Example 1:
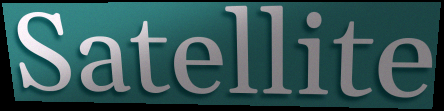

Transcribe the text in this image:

Satellite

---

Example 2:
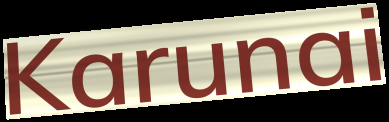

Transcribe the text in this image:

Karunai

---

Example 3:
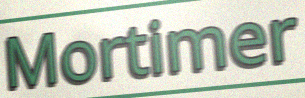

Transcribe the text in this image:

Mortimer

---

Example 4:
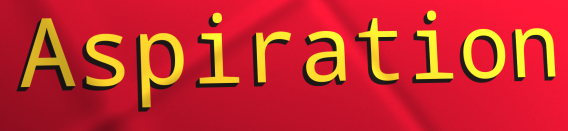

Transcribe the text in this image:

Aspiration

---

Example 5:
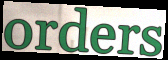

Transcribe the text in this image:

orders